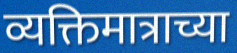
व्यक्तिमात्राच्या